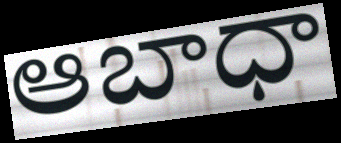
ఆబాధా